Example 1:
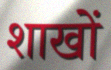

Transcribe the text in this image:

शाखों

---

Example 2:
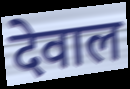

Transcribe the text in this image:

देवाल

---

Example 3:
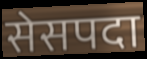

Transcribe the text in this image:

सेसपदा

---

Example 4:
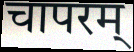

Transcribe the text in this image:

चापरम्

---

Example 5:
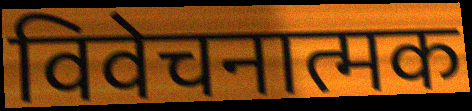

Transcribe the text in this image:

विवेचनात्‍मक